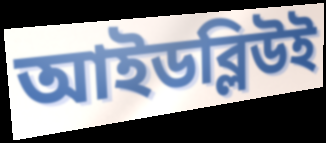
আইডব্লিউই